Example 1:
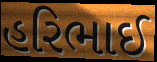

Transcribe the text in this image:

હરિભાઈ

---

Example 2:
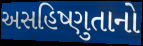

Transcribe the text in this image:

અસહિષ્ણુતાનો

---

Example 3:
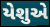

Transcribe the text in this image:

યેશુએ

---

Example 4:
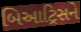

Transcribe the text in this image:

બિઆટ્રિસને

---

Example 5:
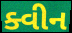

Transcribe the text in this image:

ક્વીન